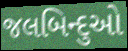
જલબિન્દુઓ